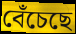
বেঁচেছে